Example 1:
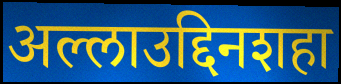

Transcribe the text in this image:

अल्लाउद्दिनशहा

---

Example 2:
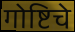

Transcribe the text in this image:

गोष्टिचे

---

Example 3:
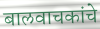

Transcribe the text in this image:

बालवाचकांचे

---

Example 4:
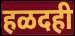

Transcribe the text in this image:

हळदही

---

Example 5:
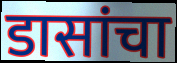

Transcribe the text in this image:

डासांचा